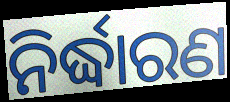
ନିର୍ଦ୍ଧାରଣ